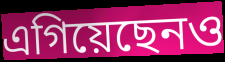
এগিয়েছেনও